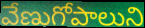
వేణుగోపాలుని